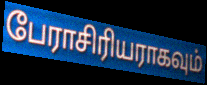
பேராசிரியராகவும்